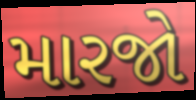
મારજો